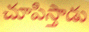
చూపిస్తాడు